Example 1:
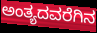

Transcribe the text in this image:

ಅಂತ್ಯದವರೆಗಿನ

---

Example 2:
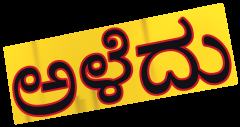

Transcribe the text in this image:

ಅಳೆದು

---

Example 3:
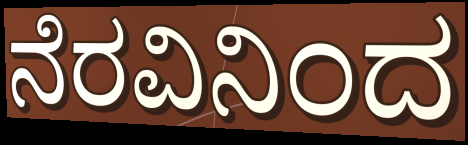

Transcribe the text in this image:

ನೆರವಿನಿಂದ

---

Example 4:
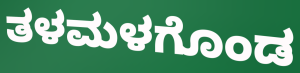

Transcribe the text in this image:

ತಳಮಳಗೊಂಡ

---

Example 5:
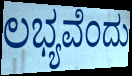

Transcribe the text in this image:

ಲಭ್ಯವೆಂದು